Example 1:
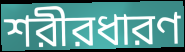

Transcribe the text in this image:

শরীরধারণ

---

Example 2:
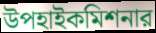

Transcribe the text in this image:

উপহাইকমিশনার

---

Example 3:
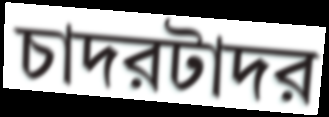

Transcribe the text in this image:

চাদরটাদর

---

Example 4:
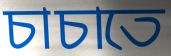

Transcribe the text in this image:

চাচাতে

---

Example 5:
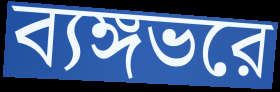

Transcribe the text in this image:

ব্যঙ্গভরে